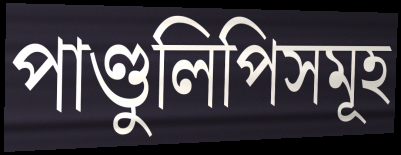
পাণ্ডুলিপিসমূহ